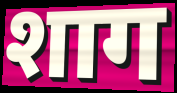
शाग